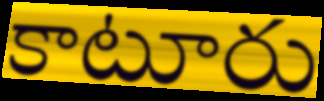
కాటూరు